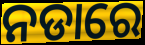
ନଡାରେ